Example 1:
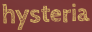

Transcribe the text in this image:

hysteria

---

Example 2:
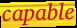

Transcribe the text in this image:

capable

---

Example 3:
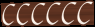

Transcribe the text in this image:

CCCCCC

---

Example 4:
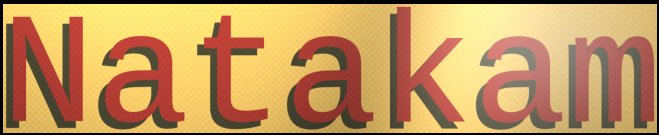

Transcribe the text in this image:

Natakam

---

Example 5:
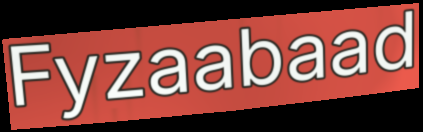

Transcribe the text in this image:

Fyzaabaad